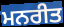
ਮਨਰੀਤ